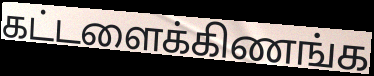
கட்டளைக்கிணங்க